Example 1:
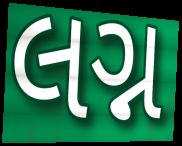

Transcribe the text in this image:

લગ્ન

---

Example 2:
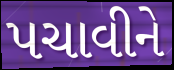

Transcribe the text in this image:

પચાવીને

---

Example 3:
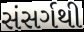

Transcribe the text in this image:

સંસર્ગથી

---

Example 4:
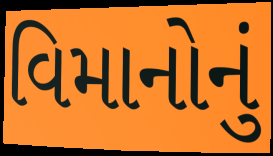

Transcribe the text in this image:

વિમાનોનું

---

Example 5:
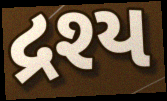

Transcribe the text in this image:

દ્રશ્ય